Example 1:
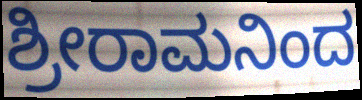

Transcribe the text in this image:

ಶ್ರೀರಾಮನಿಂದ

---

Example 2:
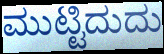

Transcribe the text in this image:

ಮುಟ್ಟಿದುದು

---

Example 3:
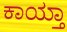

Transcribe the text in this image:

ಕಾಯ್ತಾ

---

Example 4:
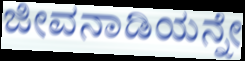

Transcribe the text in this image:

ಜೀವನಾಡಿಯನ್ನೇ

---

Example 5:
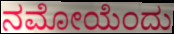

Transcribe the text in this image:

ನಮೋಯೆಂದು